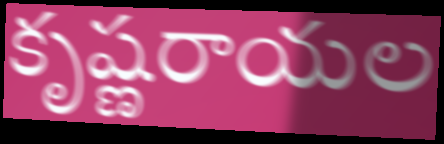
కృష్ణరాయల